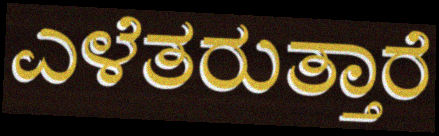
ಎಳೆತರುತ್ತಾರೆ